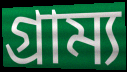
গ্ৰাম্য